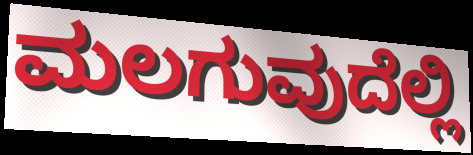
ಮಲಗುವುದೆಲ್ಲಿ